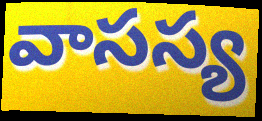
వాసస్య